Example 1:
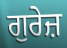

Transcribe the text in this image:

ਗੁਰੇਜ਼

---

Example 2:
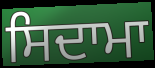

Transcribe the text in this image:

ਸਿਦਾਮਾ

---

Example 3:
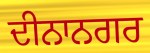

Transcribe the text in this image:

ਦੀਨਾਨਗਰ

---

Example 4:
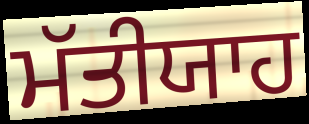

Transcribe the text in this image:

ਮੱਤੀਯਾਹ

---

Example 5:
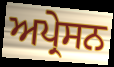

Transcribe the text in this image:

ਅਪ੍ਰੇਸਨ